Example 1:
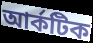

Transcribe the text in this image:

আর্কটিক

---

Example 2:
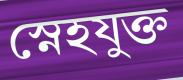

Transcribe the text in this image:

স্নেহযুক্ত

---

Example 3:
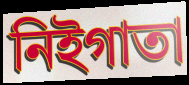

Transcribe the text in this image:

নিইগাতা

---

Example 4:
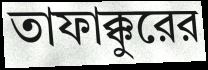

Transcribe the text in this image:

তাফাক্কুরের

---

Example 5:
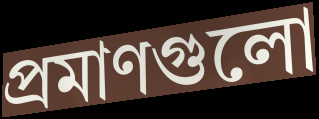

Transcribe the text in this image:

প্রমাণগুলো